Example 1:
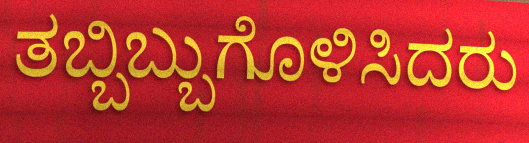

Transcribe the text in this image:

ತಬ್ಬಿಬ್ಬುಗೊಳಿಸಿದರು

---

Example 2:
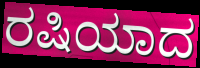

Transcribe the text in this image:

ರಷಿಯಾದ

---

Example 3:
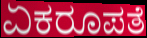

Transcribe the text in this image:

ಏಕರೂಪತೆ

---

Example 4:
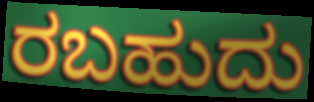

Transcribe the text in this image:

ರಬಹುದು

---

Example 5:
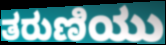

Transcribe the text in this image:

ತರುಣಿಯು